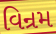
વિન્રમ